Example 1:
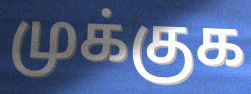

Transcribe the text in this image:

முக்குக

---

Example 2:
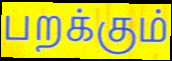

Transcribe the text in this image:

பறக்கும்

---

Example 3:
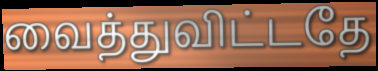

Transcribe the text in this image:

வைத்துவிட்டதே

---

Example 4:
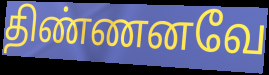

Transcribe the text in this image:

திண்ணனவே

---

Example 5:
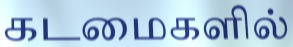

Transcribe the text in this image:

கடமைகளில்